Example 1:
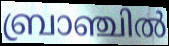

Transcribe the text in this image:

ബ്രാഞ്ചിൽ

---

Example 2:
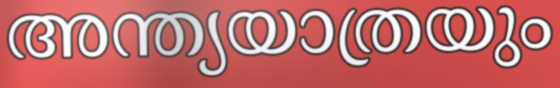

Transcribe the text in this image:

അന്ത്യയാത്രയും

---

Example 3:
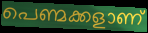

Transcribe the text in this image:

പെണ്മക്കളാണ്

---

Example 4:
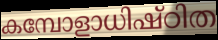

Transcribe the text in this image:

കമ്പോളാധിഷ്ഠിത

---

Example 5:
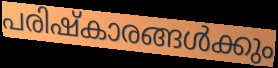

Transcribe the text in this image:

പരിഷ്കാരങ്ങൾക്കും